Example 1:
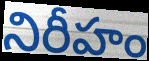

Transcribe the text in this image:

నిరీహం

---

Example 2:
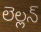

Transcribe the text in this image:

లెల్లన్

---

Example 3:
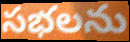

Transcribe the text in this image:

సభలను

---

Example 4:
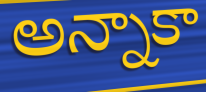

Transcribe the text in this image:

అన్నాకా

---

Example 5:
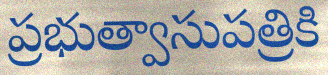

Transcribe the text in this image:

ప్రభుత్వాసుపత్రికి